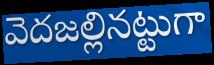
వెదజల్లినట్టుగా